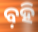
ବ଼ହି